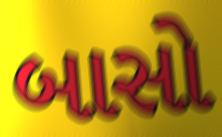
બાસો